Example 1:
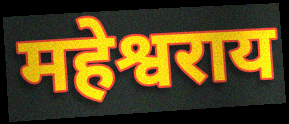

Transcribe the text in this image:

महेश्वराय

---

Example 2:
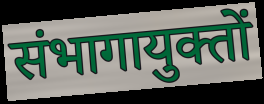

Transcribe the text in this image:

संभागायुक्तों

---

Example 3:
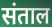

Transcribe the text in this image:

संताल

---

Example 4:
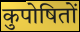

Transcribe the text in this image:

कुपोषितों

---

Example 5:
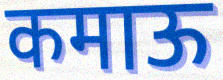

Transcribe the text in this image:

कमाऊ